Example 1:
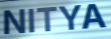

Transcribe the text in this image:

NITYA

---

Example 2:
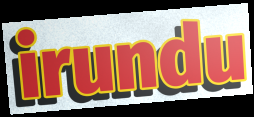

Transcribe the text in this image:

irundu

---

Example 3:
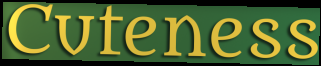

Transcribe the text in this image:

Cuteness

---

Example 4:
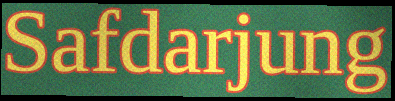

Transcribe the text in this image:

Safdarjung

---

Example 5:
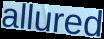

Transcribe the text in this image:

allured